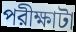
পরীক্ষাটা